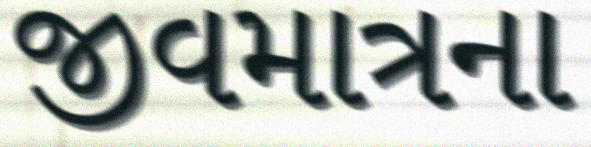
જીવમાત્રના